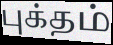
புக்தம்